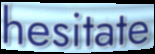
hesitate